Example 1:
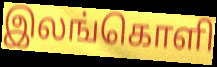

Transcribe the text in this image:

இலங்கொளி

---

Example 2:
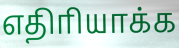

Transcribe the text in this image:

எதிரியாக்க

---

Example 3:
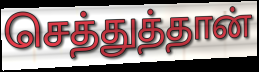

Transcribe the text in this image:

செத்துத்தான்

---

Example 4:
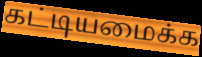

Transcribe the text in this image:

கட்டியமைக்க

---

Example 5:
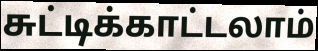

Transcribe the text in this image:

சுட்டிக்காட்டலாம்